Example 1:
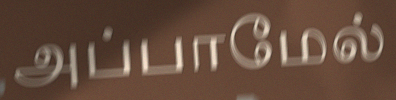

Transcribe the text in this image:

அப்பாமேல்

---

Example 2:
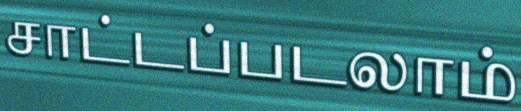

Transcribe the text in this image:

சாட்டப்படலாம்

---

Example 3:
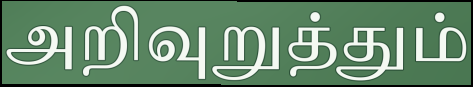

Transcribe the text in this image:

அறிவுறுத்தும்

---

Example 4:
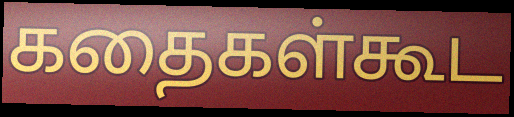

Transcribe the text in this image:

கதைகள்கூட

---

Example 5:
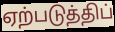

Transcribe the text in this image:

ஏற்படுத்திப்